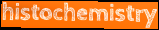
histochemistry